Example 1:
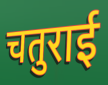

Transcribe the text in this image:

चतुराई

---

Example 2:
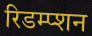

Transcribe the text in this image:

रिडम्प्शन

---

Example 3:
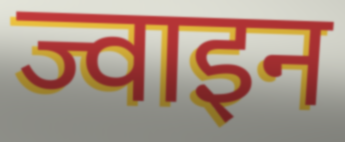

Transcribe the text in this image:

ज्वाइन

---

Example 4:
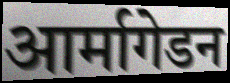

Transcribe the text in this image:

आर्मागेडन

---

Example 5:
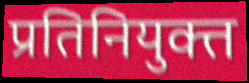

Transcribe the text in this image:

प्रतिनियुक्त